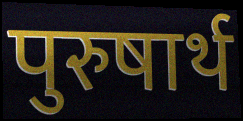
पुरुषार्थ